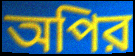
অপির